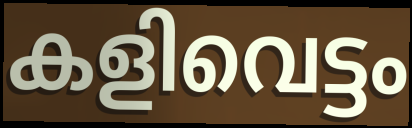
കളിവെട്ടം